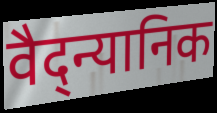
वैद्न्यानिक